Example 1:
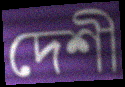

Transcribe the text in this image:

দেশী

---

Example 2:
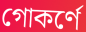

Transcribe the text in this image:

গোকর্ণে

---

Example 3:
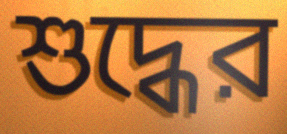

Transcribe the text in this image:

শুদ্ধের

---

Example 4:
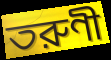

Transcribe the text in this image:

তরুণী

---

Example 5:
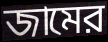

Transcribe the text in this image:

জামের